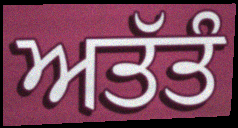
ਅਤੱਤੰ